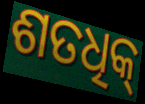
ଶତଧିକ୍